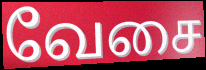
வேசை